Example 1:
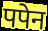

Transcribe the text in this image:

पपेन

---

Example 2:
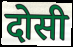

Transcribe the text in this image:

दोसी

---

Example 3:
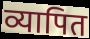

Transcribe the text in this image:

व्यापित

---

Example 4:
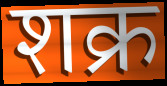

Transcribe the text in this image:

शक्र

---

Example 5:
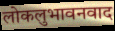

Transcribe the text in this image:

लोकलुभावनवाद